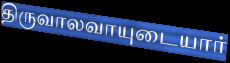
திருவாலவாயுடையார்